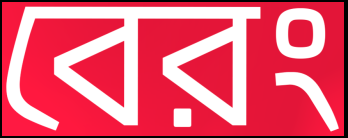
বেরং